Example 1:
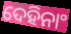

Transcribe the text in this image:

ଦେହିନାଂ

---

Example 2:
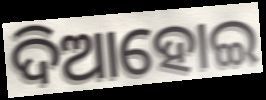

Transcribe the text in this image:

ଦିଆହୋଇ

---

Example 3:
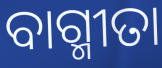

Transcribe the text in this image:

ବାଗ୍ମୀତା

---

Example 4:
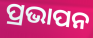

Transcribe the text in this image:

ପ୍ରଭାପନ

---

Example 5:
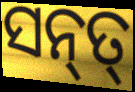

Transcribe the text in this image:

ସନ୍‌ତ୍